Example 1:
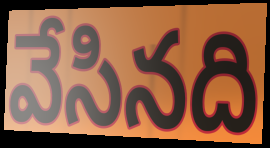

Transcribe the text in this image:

వేసినది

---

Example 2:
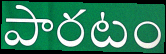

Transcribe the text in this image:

పారటం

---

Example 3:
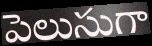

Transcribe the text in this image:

పెలుసుగా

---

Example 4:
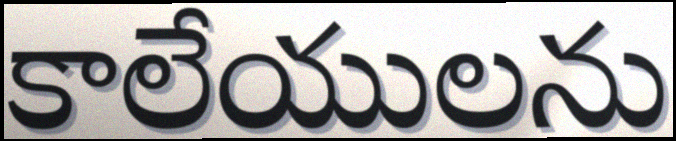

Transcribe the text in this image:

కాలేయులను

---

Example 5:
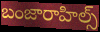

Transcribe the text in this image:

బంజారాహిల్స్